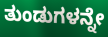
ತುಂಡುಗಳನ್ನೇ